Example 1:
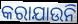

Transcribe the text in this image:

କରାଯାଉନି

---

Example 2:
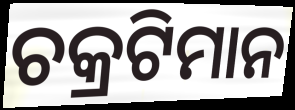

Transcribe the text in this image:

ଚକ୍ରଟିମାନ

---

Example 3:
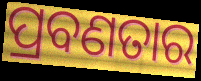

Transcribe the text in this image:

ପ୍ରବଣତାର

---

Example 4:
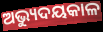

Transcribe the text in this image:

ଅଭ୍ୟୁଦୟକାଳ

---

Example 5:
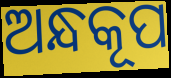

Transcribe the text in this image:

ଅନ୍ଧକୂପ